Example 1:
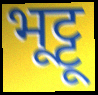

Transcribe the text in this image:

भूट्टू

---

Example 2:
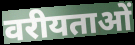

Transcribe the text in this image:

वरीयताओं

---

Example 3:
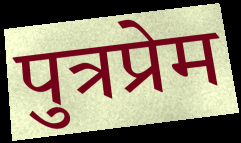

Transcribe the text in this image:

पुत्रप्रेम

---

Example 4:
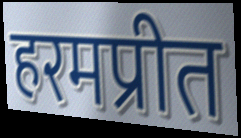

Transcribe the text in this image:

हरमप्रीत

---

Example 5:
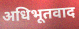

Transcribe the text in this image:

अधिभूतवाद